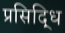
प्रसिद्धि